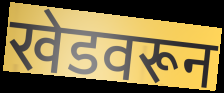
खेडवरून